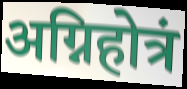
अग्निहोत्रं